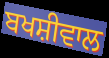
ਬਖਸ਼ੀਵਾਲ